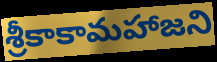
శ్రీకాకామహాజని